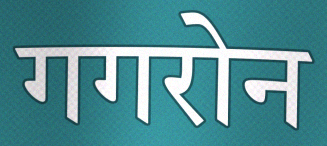
गगरोन